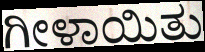
ಗೀಳಾಯಿತು